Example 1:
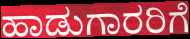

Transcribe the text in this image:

ಹಾಡುಗಾರರಿಗೆ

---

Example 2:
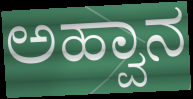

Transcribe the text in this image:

ಅಹ್ವಾನ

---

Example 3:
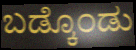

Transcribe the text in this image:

ಬಡ್ಕೊಂಡು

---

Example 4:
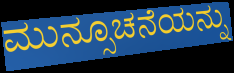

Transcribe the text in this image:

ಮುನ್ಸೂಚನೆಯನ್ನು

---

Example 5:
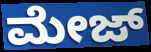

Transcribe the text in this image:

ಮೇಜ್